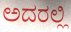
ಅದರಲ್ಲಿ